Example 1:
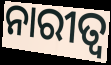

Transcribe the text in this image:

ନାରୀତ୍ୱ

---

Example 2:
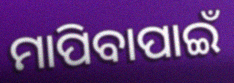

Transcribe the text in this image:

ମାପିବାପାଇଁ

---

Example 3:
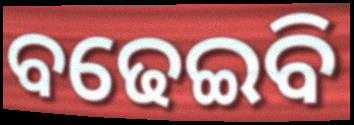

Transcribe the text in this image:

ବଢେଇବି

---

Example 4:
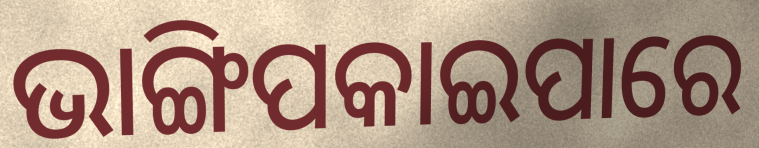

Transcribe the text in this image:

ଭାଙ୍ଗିପକାଇପାରେ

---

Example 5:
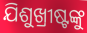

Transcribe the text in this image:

ଯିଶୁଖ୍ରୀଷ୍ଟଙ୍କୁ